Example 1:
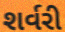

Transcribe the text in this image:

શર્વરી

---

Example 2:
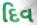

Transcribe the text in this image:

દિવ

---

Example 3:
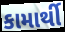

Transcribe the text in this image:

કામાર્થી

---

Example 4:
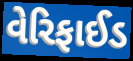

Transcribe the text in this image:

વેરિફાઈડ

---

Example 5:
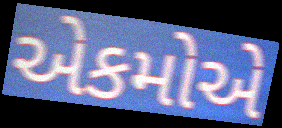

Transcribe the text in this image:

એકમોએ